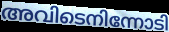
അവിടെനിന്നോടി